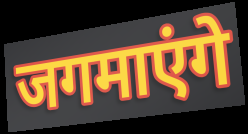
जगमाएंगे